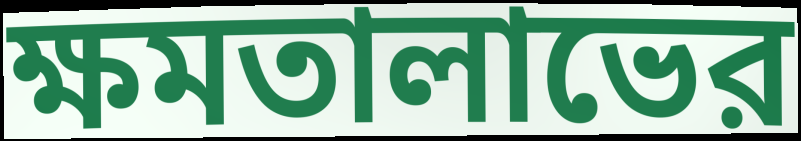
ক্ষমতালাভের